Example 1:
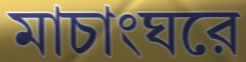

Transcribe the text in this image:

মাচাংঘরে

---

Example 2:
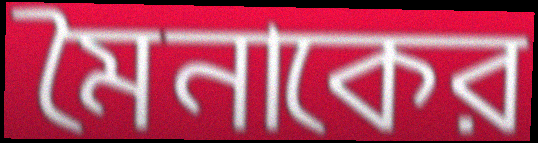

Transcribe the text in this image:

মৈনাকের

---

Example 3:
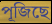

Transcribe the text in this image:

পূজিছে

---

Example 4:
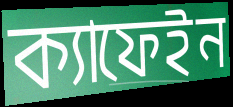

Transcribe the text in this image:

ক্যাফেইন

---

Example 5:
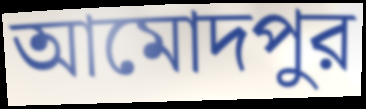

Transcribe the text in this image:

আমোদপুর